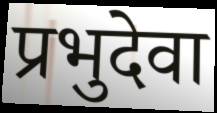
प्रभुदेवा